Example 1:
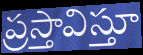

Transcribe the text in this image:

ప్రస్తావిస్తూ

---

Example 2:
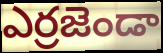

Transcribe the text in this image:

ఎర్రజెండా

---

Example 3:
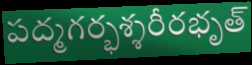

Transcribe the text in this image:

పద్మగర్భశ్శరీరభృత్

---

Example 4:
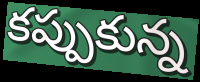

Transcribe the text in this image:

కప్పుకున్న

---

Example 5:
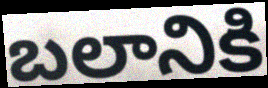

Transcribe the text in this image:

బలానికి